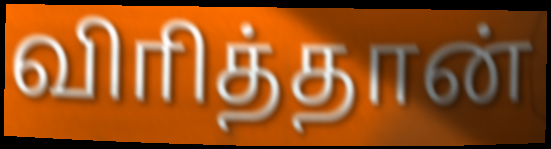
விரித்தான்